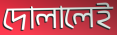
দোলালেই